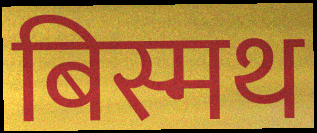
बिस्मथ